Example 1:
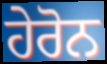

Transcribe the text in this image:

ਹੇਰੋਨ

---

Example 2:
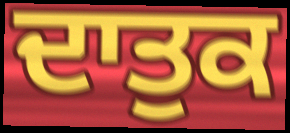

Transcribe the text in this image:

ਦਾਤੁਕ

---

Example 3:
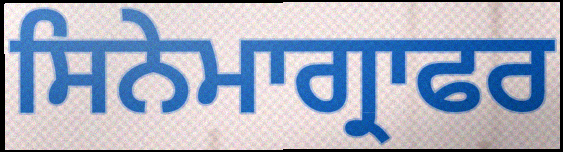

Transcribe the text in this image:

ਸਿਨੇਮਾਗ੍ਰਾਫਰ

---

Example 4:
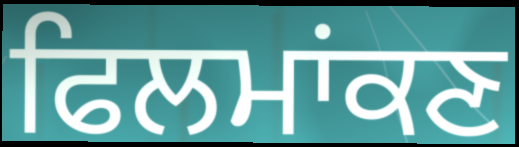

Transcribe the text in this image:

ਫਿਲਮਾਂਕਣ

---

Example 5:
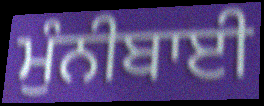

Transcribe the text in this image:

ਮੁੰਨੀਬਾਈ